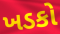
ખડકો